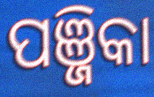
ପଞ୍ଜିକା